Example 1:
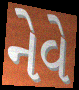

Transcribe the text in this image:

નેવે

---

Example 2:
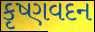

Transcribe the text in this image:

કૃષ્ણવદન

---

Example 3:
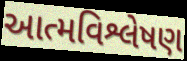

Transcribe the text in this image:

આત્મવિશ્લેષણ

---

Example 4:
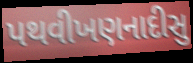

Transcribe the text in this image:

પથવીખણનાદીસુ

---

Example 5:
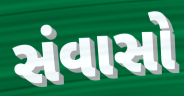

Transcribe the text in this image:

સંવાસો